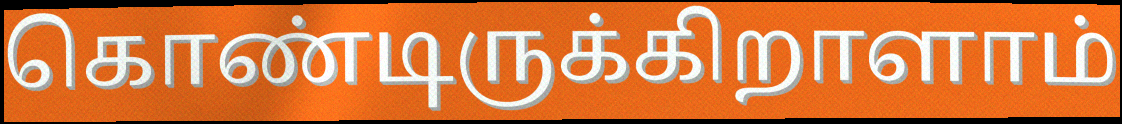
கொண்டிருக்கிறாளாம்